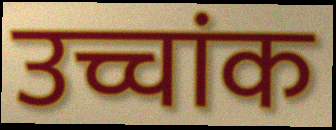
उच्चांक